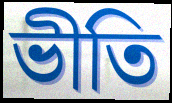
ভীতি